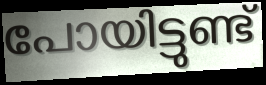
പോയിട്ടുണ്ട്